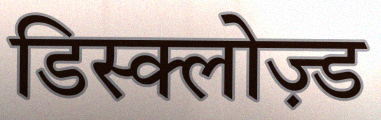
डिस्क्लोज़्ड